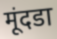
मूंदडा